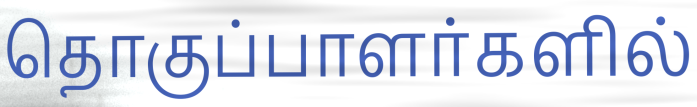
தொகுப்பாளர்களில்